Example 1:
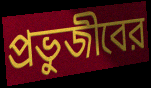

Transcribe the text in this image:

প্রভুজীবের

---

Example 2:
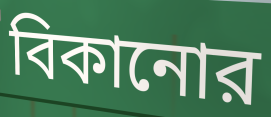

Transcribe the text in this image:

বিকানোর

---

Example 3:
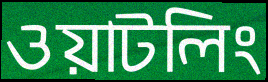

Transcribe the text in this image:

ওয়াটলিং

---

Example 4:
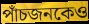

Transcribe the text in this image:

পাঁচজনকেও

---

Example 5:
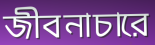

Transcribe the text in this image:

জীবনাচারে